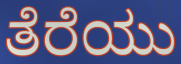
ತೆರೆಯು